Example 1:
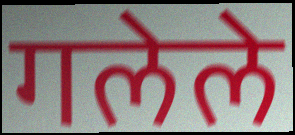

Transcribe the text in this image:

गलेले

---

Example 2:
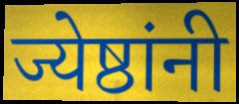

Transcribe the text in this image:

ज्येष्ठांनी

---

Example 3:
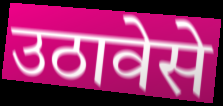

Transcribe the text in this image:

उठावेसे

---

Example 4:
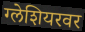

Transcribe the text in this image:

ग्लेशियरवर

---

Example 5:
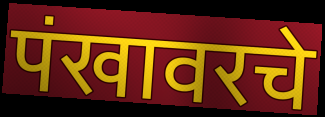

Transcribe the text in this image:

पंखावरचे